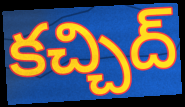
కచ్చిద్